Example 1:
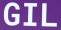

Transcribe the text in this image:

GIL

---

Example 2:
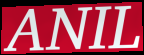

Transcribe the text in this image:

ANIL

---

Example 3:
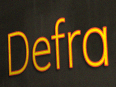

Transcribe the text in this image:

Defra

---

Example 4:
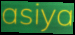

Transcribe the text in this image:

asiya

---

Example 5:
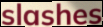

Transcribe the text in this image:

slashes